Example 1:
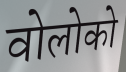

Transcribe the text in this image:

वोलोको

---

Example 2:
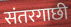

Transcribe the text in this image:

संतरगाछी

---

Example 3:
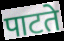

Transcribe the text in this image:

पाटते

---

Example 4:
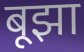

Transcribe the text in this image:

बूझा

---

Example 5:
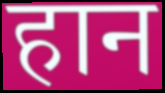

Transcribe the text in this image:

हान